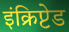
इंक्रिप्टेड